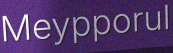
Meypporul